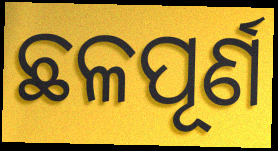
ଛଳପୂର୍ଣ